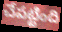
చేపట్టింది